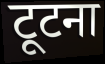
टूटना